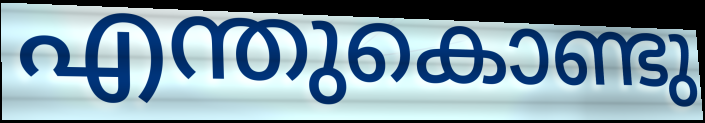
എന്തുകൊണ്ടു